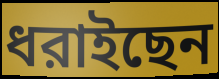
ধরাইছেন